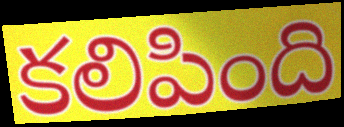
కలిపింది